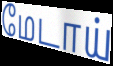
மேடாய்